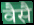
वैसै